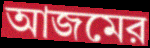
আজমের